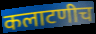
कलाटणीच